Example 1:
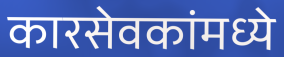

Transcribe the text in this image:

कारसेवकांमध्ये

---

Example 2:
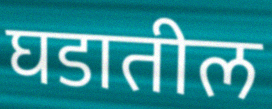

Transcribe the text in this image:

घडातील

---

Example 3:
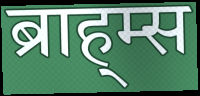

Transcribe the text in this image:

ब्राह्म्स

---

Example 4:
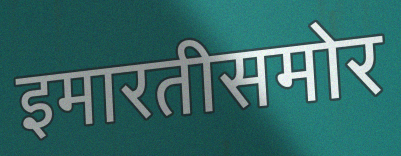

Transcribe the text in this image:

इमारतीसमोर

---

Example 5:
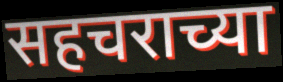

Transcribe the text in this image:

सहचराच्या